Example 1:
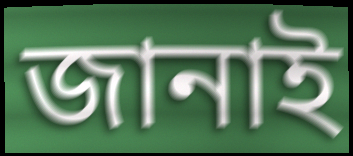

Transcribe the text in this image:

জানাই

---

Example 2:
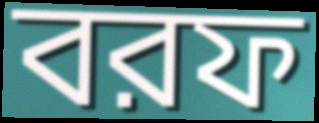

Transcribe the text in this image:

বরফ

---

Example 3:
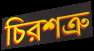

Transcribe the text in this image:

চিরশত্রু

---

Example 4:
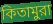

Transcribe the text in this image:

কিতামুরা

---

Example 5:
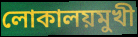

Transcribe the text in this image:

লোকালয়মুখী